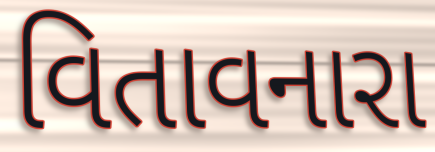
વિતાવનારા